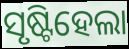
ସୃଷ୍ଟିହେଲା